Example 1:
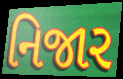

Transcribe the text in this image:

નિજાર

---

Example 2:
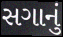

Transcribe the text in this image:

સગાનું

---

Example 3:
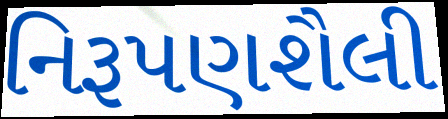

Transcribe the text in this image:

નિરૂપણશૈલી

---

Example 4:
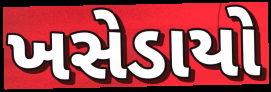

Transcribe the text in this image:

ખસેડાયો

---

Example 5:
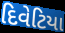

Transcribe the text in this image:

દિવેટિયા